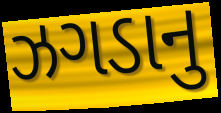
ઝગડાનુ